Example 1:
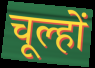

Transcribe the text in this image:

चूल्हों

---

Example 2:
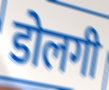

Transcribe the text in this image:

डोलगी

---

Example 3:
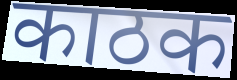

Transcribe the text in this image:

काठक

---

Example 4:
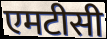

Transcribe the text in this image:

एमटीसी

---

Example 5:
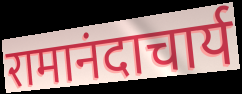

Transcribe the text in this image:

रामानंदाचार्य